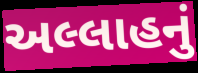
અલ્લાહનું